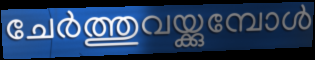
ചേർത്തുവയ്ക്കുമ്പോൾ